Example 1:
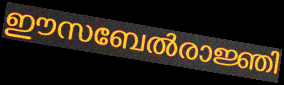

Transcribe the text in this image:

ഈസബേൽരാജ്ഞി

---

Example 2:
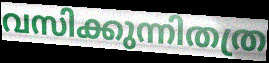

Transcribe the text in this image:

വസിക്കുന്നിതത്ര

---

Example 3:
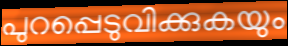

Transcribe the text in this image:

പുറപ്പെടുവിക്കുകയും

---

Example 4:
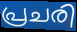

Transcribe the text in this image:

പ്രചരി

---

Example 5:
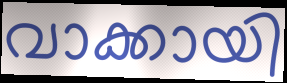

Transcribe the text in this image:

വാക്കായി